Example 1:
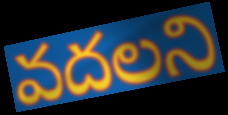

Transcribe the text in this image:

వదలని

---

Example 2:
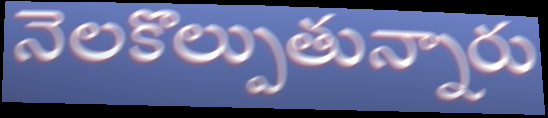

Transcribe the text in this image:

నెలకొల్పుతున్నారు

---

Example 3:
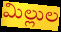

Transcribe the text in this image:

మిల్లుల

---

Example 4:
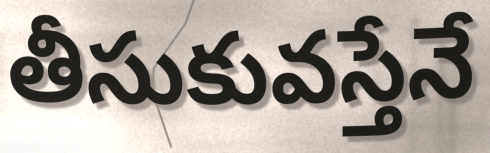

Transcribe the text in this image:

తీసుకువస్తేనే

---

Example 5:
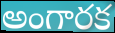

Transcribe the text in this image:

అంగారక